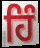
ਹਿੰ